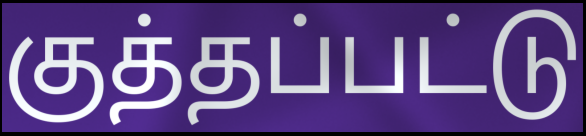
குத்தப்பட்டு